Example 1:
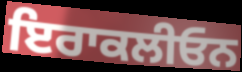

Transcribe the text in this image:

ਇਰਾਕਲੀਓਨ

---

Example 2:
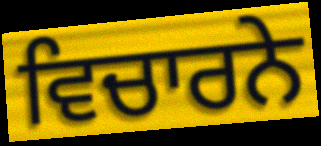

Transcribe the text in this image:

ਵਿਚਾਰਨੇ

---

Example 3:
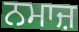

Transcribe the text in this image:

ਨਮਾਜ਼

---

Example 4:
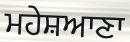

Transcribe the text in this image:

ਮਹੇਸ਼ਆਣਾ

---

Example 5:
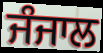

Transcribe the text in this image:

ਜੰਜਾਲ